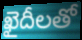
ఖైదీలతో